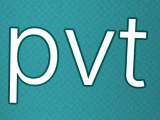
pvt